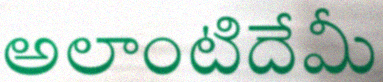
అలాంటిదేమీ